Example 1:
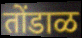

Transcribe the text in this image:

तोंडाळ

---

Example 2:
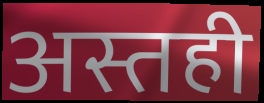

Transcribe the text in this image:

अस्तही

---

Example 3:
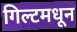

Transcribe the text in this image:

गिल्टमधून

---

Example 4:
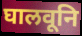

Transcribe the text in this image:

घालवूनि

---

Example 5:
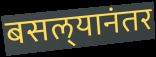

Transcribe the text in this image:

बसल्यानंतर